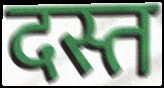
दस्त